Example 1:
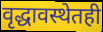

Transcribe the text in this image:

वृद्धावस्थेतही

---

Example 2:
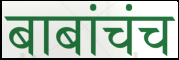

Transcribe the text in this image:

बाबांचंच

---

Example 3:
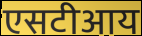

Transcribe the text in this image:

एसटीआय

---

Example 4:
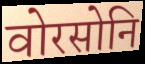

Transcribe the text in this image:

वोरसोनि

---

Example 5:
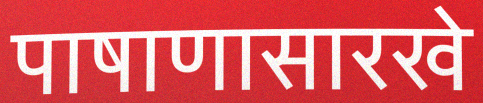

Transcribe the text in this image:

पाषाणासारखे